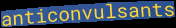
anticonvulsants